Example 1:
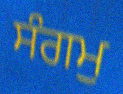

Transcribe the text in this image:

ਸੰਗਮੁ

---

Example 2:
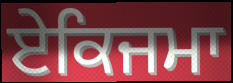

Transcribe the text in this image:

ਏਕਿਜਮਾ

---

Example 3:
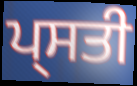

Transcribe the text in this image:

ਪ੍ਸਤੀ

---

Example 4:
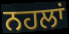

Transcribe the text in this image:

ਨਹਲਾਂ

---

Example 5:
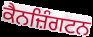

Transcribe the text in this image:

ਕੈਨਜ਼ਿੰਗਟਨ